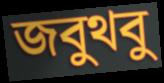
জবুথবু